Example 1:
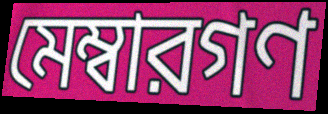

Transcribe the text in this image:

মেম্বারগণ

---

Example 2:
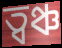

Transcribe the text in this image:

ত্বঞ্চ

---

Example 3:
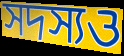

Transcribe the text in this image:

সদস্যও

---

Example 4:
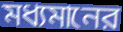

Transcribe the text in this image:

মধ্যমানের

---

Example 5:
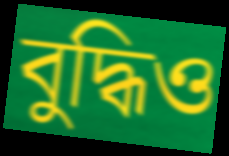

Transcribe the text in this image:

বুদ্ধিও